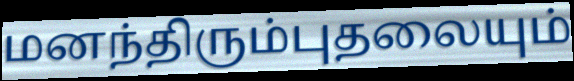
மனந்திரும்புதலையும்